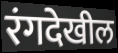
रंगदेखील